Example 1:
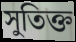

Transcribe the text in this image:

সুতিক্ত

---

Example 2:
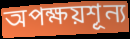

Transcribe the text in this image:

অপক্ষয়শূন্য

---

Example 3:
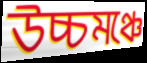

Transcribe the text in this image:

উচ্চমঞ্চে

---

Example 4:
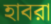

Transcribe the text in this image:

হাবরা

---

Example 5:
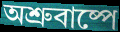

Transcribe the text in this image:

অশ্রুবাষ্পে